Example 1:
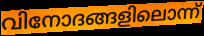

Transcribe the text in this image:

വിനോദങ്ങളിലൊന്ന്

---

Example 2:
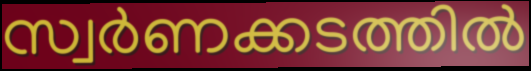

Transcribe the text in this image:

സ്വർണക്കടത്തിൽ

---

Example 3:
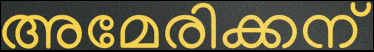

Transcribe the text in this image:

അമേരിക്കന്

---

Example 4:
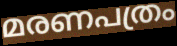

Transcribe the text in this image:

മരണപത്രം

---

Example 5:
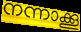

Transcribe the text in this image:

നന്നാക്കൂ